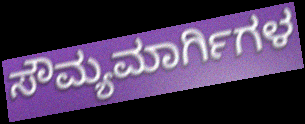
ಸೌಮ್ಯಮಾರ್ಗಿಗಳ